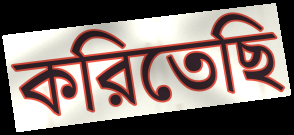
করিতেছি